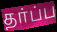
தர்ப்ப